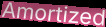
Amortized